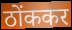
ठोंककर